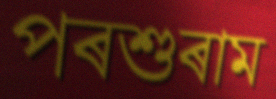
পৰশুৰাম